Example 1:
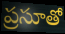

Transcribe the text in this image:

ప్రసూతో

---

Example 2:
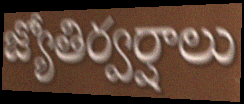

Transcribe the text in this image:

జ్యోతిర్వర్షాలు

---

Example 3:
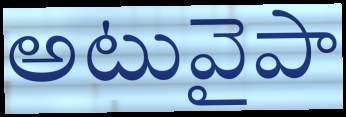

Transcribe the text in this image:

అటువైపా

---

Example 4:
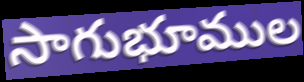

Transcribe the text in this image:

సాగుభూముల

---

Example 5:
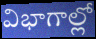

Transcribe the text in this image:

విభాగాల్లో